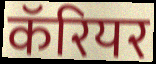
कॅरियर